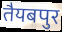
तैयबपुर